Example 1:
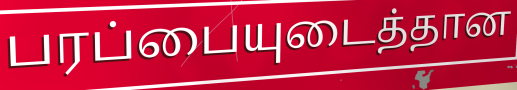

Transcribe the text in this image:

பரப்பையுடைத்தான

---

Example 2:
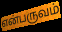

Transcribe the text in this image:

என்பருவம்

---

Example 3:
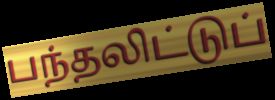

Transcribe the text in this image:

பந்தலிட்டுப்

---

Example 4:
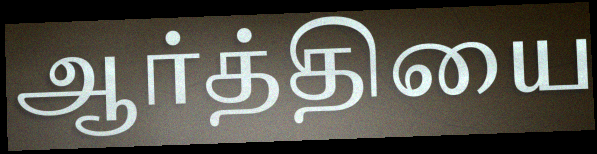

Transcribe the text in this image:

ஆர்த்தியை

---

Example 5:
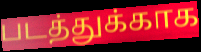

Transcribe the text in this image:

படத்துக்காக